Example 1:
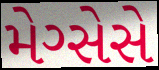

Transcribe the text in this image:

મેગ્સેસે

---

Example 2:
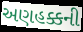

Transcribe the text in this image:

અણહક્કની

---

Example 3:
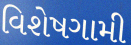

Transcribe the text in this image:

વિશેષગામી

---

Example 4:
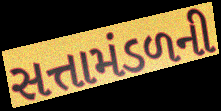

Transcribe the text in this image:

સત્તામંડળની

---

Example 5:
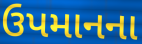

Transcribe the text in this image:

ઉપમાનના